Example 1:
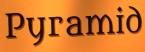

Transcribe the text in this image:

Pyramid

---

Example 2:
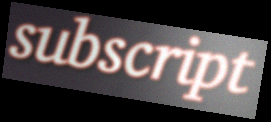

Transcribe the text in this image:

subscript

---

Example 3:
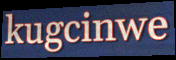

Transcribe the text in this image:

kugcinwe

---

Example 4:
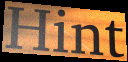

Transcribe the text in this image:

Hint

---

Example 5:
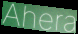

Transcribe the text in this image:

Ahera